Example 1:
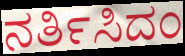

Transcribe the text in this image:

ನರ್ತಿಸಿದಂ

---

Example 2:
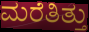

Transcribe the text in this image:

ಮರೆತಿತ್ತು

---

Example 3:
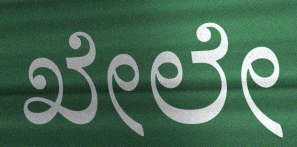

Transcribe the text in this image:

ಖೇಲೇ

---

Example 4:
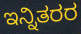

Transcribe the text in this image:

ಇನ್ನಿತರರ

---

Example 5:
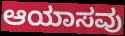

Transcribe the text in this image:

ಆಯಾಸವು